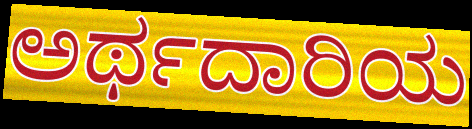
ಅರ್ಥದಾರಿಯ